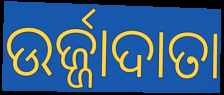
ଉର୍ଜ୍ଜାଦାତା